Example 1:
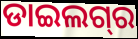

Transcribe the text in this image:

ଡାଇଲଗ୍‌ର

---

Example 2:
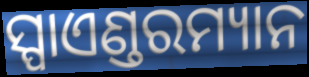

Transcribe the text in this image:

ସ୍ପାଏଣ୍ଡରମ୍ୟାନ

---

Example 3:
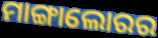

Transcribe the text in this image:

ମାଙ୍ଗାଲୋରର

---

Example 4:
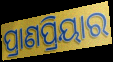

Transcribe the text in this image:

ପ୍ରାଣପ୍ରିୟାର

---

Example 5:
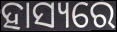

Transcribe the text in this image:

ହାସ୍ୟରେ